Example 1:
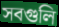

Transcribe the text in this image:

সবগুলি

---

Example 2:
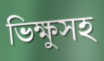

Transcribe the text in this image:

ভিক্ষুসহ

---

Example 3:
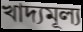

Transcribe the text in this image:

খাদ্যমূল্য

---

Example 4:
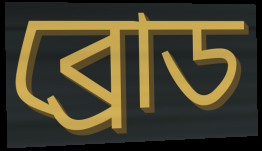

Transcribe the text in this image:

ব্রোড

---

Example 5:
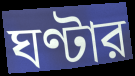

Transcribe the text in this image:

ঘণ্টার